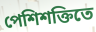
পেশিশক্তিতে